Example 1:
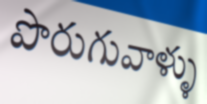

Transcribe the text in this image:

పొరుగువాళ్ళు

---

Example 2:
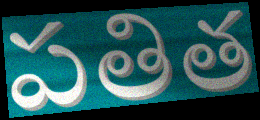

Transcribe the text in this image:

పతిత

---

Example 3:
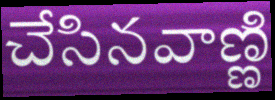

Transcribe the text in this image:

చేసినవాణ్ణి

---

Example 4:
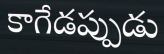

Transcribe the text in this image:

కాగేడప్పుడు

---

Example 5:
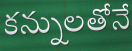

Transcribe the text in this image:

కన్నులతోనే